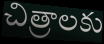
చిత్రాలకు